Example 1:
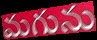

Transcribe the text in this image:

మగును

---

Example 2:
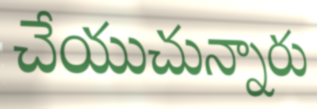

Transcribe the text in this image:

చేయుచున్నారు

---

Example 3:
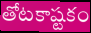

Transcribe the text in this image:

తోటకాష్టకం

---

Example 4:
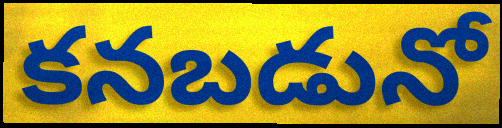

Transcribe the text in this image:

కనబడునో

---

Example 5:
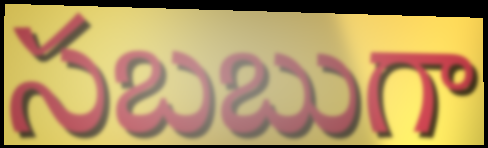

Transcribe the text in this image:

సబబుగా